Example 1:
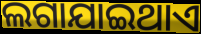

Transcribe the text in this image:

ଲଗାଯାଇଥାଏ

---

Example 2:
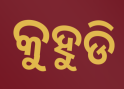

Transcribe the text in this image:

କୁହୁଡି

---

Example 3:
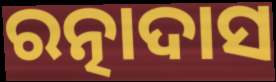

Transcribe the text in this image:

ରତ୍ନାଦାସ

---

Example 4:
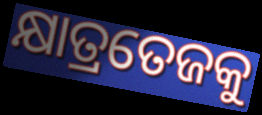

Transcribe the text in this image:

କ୍ଷାତ୍ରତେଜକୁ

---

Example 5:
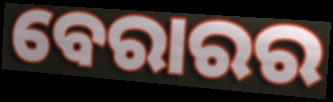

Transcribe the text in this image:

ବେରାରର